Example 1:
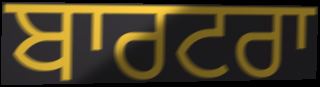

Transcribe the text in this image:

ਬਾਰਟਰਾ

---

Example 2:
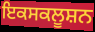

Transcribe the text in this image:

ਇਕਸਕਲੂਸ਼ਨ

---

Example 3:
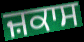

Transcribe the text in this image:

ਜ਼ਕਾਸ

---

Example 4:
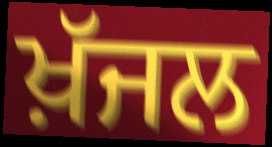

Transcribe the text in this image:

ਖ਼ੱਜਲ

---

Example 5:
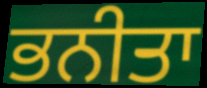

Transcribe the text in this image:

ਭਨੀਤਾ